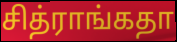
சித்ராங்கதா